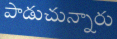
పాడుచున్నారు